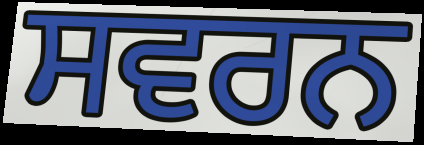
ਸਵਰਨ